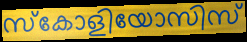
സ്കോളിയോസിസ്